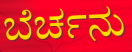
ಬೆರ್ಚನು